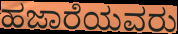
ಹಜಾರೆಯವರು